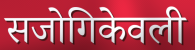
सजोगिकेवली